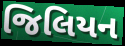
જિલિયન